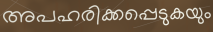
അപഹരിക്കപ്പെടുകയും